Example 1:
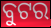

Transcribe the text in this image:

ବୁଟର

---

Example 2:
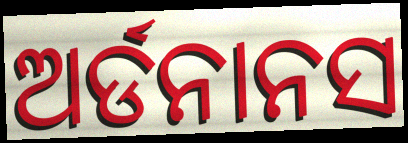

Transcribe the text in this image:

ଅର୍ଡନାନସ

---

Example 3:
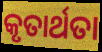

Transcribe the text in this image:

କୃତାର୍ଥତା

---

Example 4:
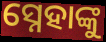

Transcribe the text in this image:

ସ୍ନେହାଙ୍କୁ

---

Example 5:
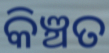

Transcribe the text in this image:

କିଞ୍ଚତ